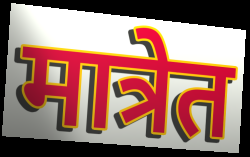
मात्रेत